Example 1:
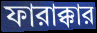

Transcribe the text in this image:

ফারাক্কার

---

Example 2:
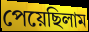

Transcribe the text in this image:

পেয়েছিলাম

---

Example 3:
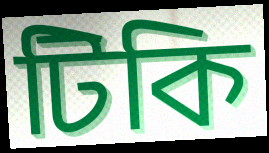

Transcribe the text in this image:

টিকি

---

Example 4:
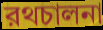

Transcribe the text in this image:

রথচালনা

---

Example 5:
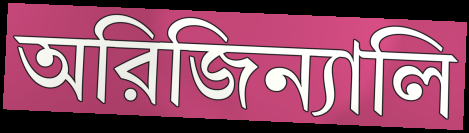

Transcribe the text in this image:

অরিজিন্যালি